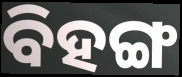
ବିହଙ୍ଗ